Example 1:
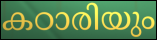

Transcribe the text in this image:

കഠാരിയും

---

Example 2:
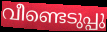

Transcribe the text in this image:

വീണ്ടെടുപ്പു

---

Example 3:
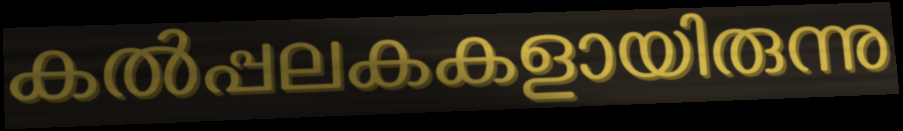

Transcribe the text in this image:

കൽപ്പലകകളായിരുന്നു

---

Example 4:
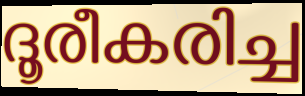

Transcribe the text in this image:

ദൂരീകരിച്ച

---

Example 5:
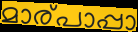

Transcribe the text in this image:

മാര്പാപ്പാ